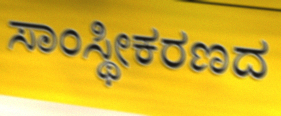
ಸಾಂಸ್ಥೀಕರಣದ